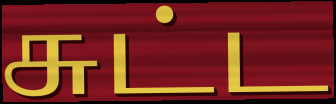
சுட்ட